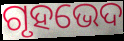
ଗୃହଭେଦ